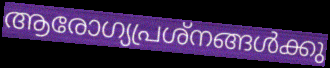
ആരോഗ്യപ്രശ്നങ്ങൾക്കു